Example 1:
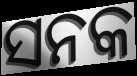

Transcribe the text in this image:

ସନକ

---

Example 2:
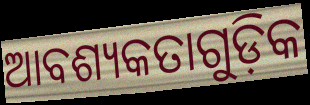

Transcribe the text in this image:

ଆବଶ୍ୟକତାଗୁଡ଼ିକ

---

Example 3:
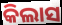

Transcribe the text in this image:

କିଲାସ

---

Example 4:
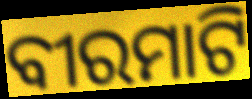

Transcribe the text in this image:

ବୀରମାଟି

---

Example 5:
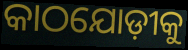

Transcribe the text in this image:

କାଠଯୋଡ଼ୀକୁ